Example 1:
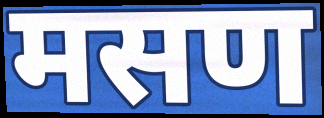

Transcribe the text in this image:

मसण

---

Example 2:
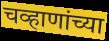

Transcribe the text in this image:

चव्हाणांच्या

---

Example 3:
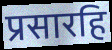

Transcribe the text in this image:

प्रसारहि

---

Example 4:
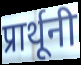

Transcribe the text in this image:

प्रार्थूनी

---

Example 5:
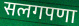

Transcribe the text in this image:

सलगपणा